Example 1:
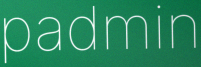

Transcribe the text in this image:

padmin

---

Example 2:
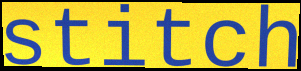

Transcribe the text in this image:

stitch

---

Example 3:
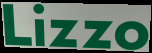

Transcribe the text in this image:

Lizzo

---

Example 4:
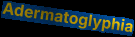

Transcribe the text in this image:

Adermatoglyphia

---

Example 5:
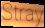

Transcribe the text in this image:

Stray